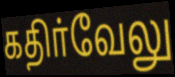
கதிர்வேலு